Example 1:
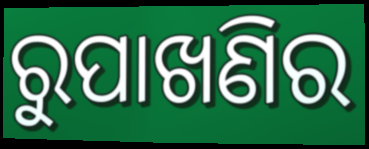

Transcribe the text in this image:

ରୁପାଖଣିର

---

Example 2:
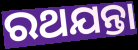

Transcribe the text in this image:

ରଥଯନ୍ତା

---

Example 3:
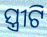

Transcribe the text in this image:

ସ୍ତ୍ରୀଟି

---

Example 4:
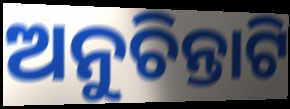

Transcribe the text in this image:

ଅନୁଚିନ୍ତାଟି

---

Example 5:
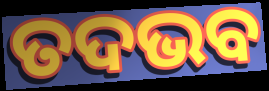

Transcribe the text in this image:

ତଦଭବ